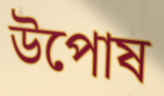
উপোষ